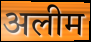
अलीम